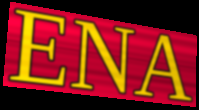
ENA